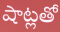
షాట్లతో